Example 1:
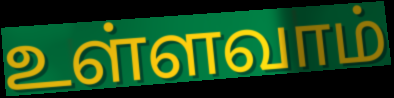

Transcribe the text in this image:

உள்ளவாம்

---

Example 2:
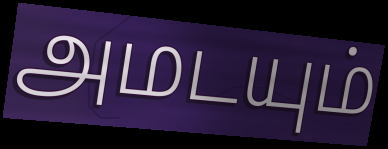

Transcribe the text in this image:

அமடயும்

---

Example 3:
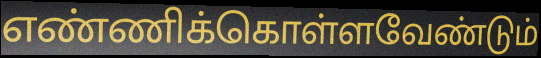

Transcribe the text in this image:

எண்ணிக்கொள்ளவேண்டும்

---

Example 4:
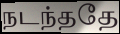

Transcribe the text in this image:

நடந்ததே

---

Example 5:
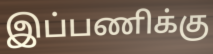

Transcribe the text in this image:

இப்பணிக்கு